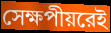
সেক্ষপীয়রেই